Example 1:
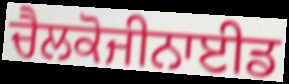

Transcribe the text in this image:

ਚੈਲਕੋਜੀਨਾਈਡ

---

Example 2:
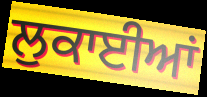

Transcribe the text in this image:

ਲੁਕਾਈਆਂ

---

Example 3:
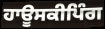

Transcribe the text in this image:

ਹਾਊਸਕੀਪਿੰਗ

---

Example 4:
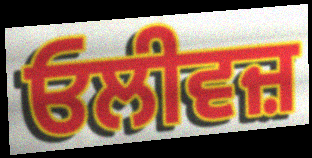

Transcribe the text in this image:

ਓਲੀਵਜ਼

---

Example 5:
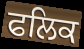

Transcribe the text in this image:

ਫਲਿਕ